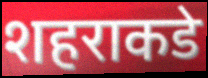
शहराकडे